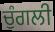
ਚੁੰਗਲੀ